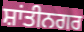
ਸ਼ਾਂਤੀਨਗਰ